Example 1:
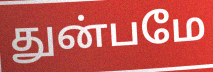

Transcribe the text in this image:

துன்பமே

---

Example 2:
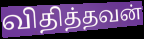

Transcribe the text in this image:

விதித்தவன்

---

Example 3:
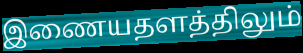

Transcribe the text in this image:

இணையதளத்திலும்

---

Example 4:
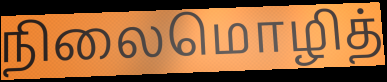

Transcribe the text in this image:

நிலைமொழித்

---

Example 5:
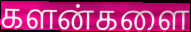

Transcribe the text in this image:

களன்களை